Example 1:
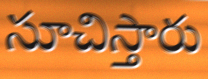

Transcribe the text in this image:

సూచిస్తారు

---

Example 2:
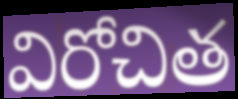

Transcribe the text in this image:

విరోచిత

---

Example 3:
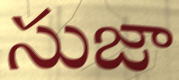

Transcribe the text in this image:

సుజా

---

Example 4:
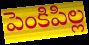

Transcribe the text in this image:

పెంకిపిల్ల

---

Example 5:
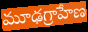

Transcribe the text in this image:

మూఢగ్రాహేణ